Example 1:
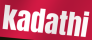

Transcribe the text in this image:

kadathi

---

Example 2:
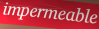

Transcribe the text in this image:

impermeable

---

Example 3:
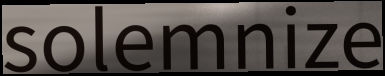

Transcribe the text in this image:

solemnize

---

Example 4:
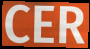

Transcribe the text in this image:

CER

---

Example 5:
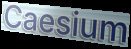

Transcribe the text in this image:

Caesium